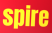
spire